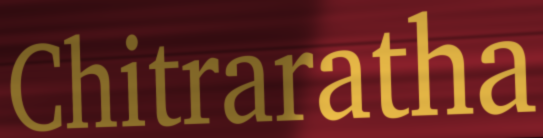
Chitraratha